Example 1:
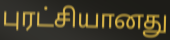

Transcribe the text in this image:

புரட்சியானது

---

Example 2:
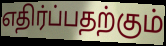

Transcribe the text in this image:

எதிர்ப்பதற்கும்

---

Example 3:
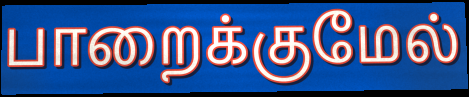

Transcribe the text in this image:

பாறைக்குமேல்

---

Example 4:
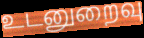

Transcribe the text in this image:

உடனுறைவு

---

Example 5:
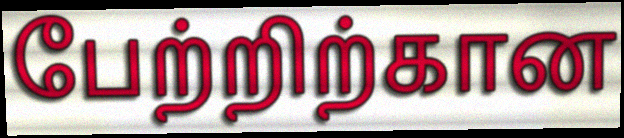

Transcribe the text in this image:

பேற்றிற்கான